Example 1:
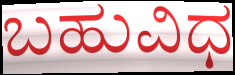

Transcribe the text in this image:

ಬಹುವಿಧ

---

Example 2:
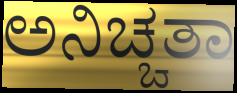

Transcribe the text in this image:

ಅನಿಚ್ಚತಾ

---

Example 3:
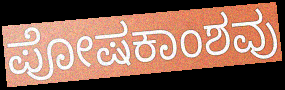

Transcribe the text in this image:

ಪೋಷಕಾಂಶವು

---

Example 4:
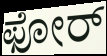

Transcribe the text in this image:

ಫೋರ್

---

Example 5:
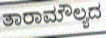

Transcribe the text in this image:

ತಾರಾಮೌಲ್ಯದ